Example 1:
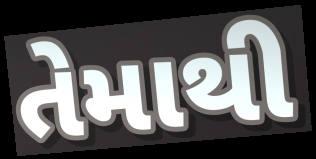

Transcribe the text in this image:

તેમાથી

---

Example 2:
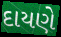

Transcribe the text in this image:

દાયણે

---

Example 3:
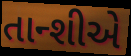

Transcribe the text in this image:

તાન્શીએ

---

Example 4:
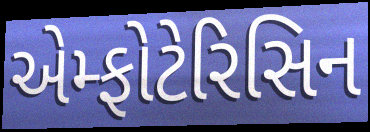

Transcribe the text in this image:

એમ્ફોટેરિસિન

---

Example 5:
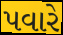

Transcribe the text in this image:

પવારે